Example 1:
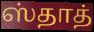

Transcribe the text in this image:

ஸ்தாத்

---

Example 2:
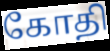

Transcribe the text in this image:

கோதி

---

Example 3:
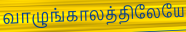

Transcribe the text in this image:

வாழுங்காலத்திலேயே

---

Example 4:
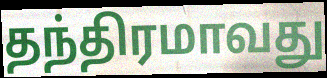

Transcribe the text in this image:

தந்திரமாவது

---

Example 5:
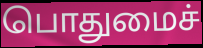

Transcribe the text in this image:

பொதுமைச்